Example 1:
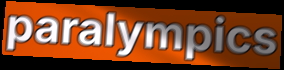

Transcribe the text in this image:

paralympics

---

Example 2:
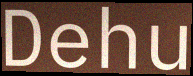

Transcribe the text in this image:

Dehu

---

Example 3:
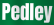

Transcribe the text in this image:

Pedley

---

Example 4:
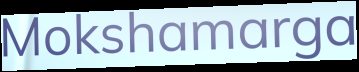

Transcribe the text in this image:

Mokshamarga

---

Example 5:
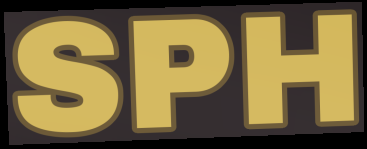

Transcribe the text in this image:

SPH